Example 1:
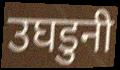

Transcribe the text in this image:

उघडुनी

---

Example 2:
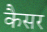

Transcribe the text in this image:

कैसर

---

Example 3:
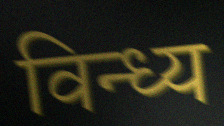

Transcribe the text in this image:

विन्ध्य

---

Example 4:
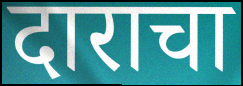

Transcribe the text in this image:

दाराचा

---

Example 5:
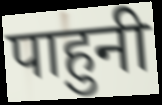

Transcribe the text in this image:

पाहुनी